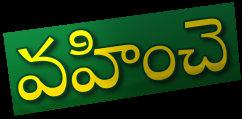
వహించె